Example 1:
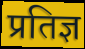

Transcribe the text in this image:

प्रतिज्ञ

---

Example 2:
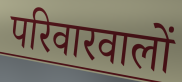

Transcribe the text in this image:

परिवारवालों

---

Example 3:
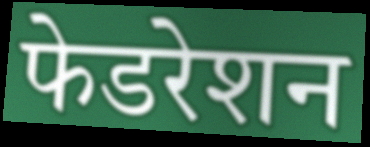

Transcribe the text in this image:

फेडरेशन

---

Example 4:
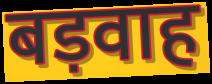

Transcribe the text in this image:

बड़वाह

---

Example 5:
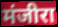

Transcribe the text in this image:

मंजीरा